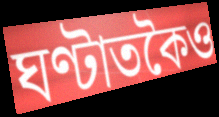
ঘণ্টাতকৈও